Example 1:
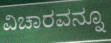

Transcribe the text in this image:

ವಿಚಾರವನ್ನೂ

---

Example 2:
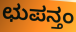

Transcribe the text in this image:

ಛುಪನ್ತಂ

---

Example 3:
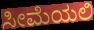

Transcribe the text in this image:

ಸೀಮೆಯಲಿ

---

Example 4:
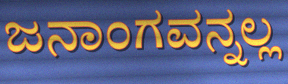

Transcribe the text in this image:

ಜನಾಂಗವನ್ನಲ್ಲ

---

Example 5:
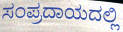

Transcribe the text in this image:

ಸಂಪ್ರದಾಯದಲ್ಲಿ